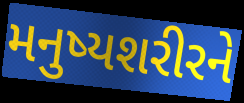
મનુષ્યશરીરને